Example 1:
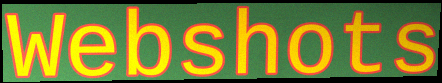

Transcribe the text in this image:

Webshots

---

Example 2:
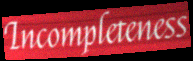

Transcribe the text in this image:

Incompleteness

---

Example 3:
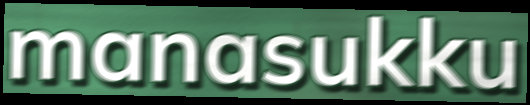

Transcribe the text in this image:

manasukku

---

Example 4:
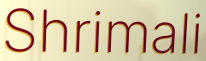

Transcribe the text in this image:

Shrimali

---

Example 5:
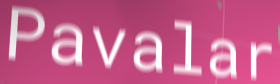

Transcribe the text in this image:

Pavalar